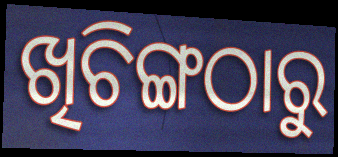
ଖିଚିଙ୍ଗଠାରୁ